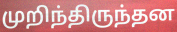
முறிந்திருந்தன